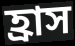
হ্রাস